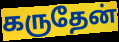
கருதேன்